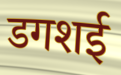
डगशई